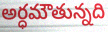
అర్ధమౌతున్నది